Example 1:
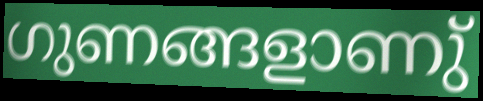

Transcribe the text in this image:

ഗുണങ്ങളാണു്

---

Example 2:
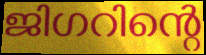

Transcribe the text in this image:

ജിഗറിന്റെ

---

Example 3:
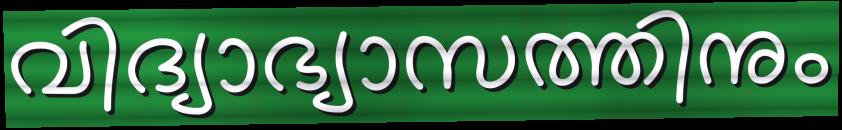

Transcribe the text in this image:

വിദ്യാഭ്യാസത്തിനും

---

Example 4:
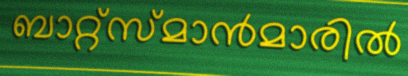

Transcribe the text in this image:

ബാറ്റ്സ്മാൻമാരിൽ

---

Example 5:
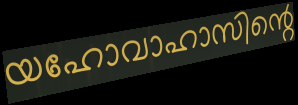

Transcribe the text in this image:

യഹോവാഹാസിന്റെ